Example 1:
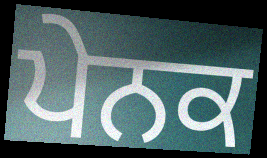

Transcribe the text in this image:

ਪੇਨਕ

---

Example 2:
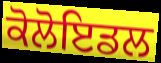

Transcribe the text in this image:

ਕੋਲੋਇਡਲ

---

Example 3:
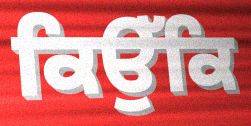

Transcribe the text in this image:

ਕਿਉੱਕਿ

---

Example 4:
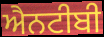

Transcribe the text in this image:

ਐਨਟੀਬੀ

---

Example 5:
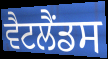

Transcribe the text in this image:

ਵੈਟਲੈਂਡਸ